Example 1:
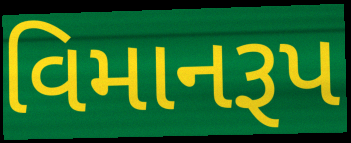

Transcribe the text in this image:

વિમાનરૂપ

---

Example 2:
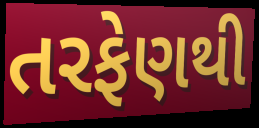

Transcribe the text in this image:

તરફેણથી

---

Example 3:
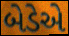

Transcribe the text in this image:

બેડેએ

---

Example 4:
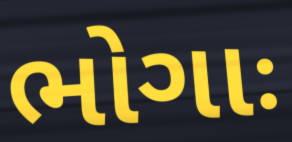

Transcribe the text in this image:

ભોગાઃ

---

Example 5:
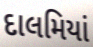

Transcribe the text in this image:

દાલમિયાં